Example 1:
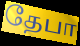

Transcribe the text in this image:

தேபா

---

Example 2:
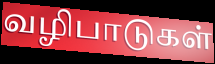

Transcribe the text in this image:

வழிபாடுகள்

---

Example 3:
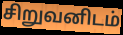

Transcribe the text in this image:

சிறுவனிடம்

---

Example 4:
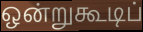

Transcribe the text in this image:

ஒன்றுகூடிப்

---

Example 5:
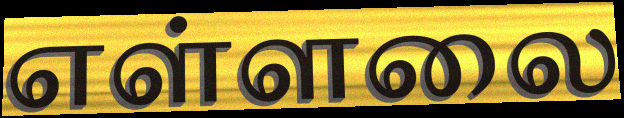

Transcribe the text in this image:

எள்ளலை